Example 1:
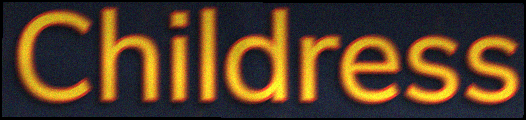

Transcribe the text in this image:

Childress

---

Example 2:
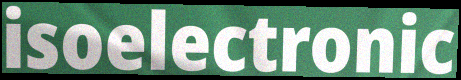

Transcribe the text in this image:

isoelectronic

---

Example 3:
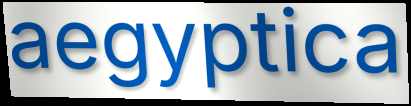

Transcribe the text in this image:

aegyptica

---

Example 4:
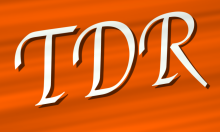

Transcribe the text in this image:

TDR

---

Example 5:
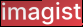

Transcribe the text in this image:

imagist